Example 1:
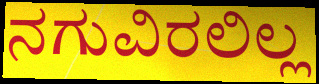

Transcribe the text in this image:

ನಗುವಿರಲಿಲ್ಲ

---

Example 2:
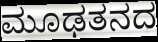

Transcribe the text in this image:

ಮೂಢತನದ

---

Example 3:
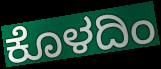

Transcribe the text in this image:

ಕೊಳದಿಂ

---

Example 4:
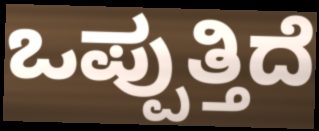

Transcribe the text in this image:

ಒಪ್ಪುತ್ತಿದೆ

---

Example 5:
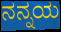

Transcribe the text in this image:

ನನ್ನಯ